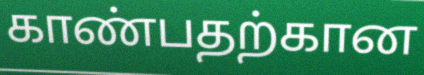
காண்பதற்கான